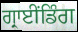
ਗ੍ਰਾਈਂਡਿੰਗ